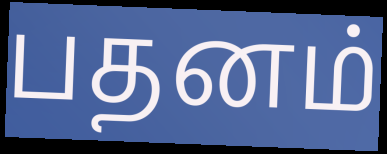
பதனம்